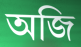
অজি